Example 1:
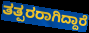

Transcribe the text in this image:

ತತ್ಪರರಾಗಿದ್ದಾರೆ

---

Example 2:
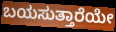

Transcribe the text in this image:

ಬಯಸುತ್ತಾರೆಯೇ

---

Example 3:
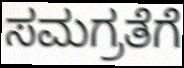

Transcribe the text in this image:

ಸಮಗ್ರತೆಗೆ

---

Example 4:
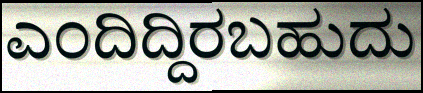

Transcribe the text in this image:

ಎಂದಿದ್ದಿರಬಹುದು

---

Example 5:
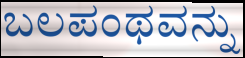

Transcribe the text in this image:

ಬಲಪಂಥವನ್ನು